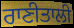
ਰਾਣੀਤਾਲੀ